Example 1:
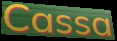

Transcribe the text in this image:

Cassa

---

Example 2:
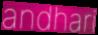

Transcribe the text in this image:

andhari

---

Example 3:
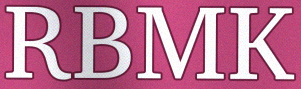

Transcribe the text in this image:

RBMK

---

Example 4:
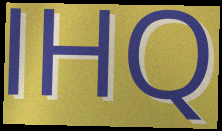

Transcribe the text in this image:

IHQ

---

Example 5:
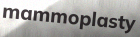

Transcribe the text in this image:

mammoplasty